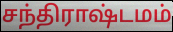
சந்திராஷ்டமம்